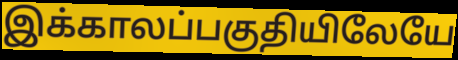
இக்காலப்பகுதியிலேயே